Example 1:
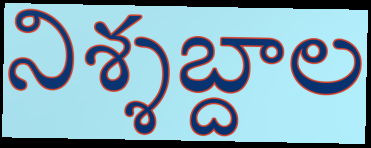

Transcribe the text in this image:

నిశ్శబ్దాల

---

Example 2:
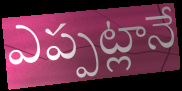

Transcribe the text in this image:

ఎప్పట్లానే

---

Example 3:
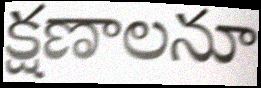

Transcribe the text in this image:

క్షణాలనూ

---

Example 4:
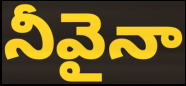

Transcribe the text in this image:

నీవైనా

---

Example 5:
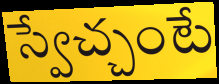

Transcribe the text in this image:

స్వేచ్చంటే